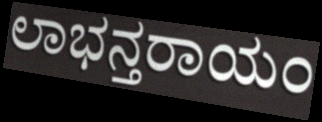
ಲಾಭನ್ತರಾಯಂ